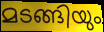
മടങ്ങിയും